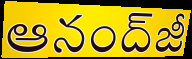
ఆనంద్‌జీ